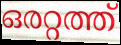
ഒരറ്റത്ത്